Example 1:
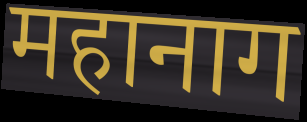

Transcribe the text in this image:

महानाग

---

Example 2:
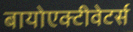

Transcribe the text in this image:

बायोएक्टीवेटर्स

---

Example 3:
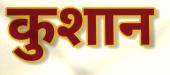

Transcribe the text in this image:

कुशान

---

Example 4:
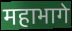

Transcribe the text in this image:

महाभागे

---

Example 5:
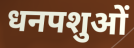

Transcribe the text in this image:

धनपशुओं